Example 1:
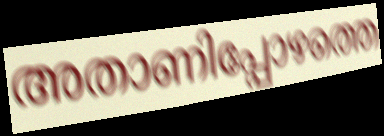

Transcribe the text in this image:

അതാണിപ്പോഴത്തെ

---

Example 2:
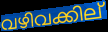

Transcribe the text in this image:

വഴിവക്കില്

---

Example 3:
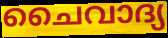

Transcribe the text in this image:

ചൈവാദ്യ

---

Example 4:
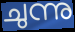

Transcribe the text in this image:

ചുന്നു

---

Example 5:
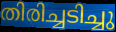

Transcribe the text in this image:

തിരിച്ചടിച്ചു